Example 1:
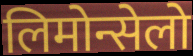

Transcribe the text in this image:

लिमोन्सेलो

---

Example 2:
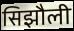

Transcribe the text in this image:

सिझौली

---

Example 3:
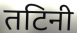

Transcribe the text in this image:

तटिनी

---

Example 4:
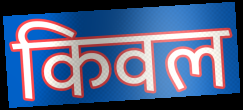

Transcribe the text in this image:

किवल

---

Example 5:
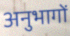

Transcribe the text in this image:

अनुभागों